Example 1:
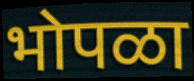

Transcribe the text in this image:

भोपळा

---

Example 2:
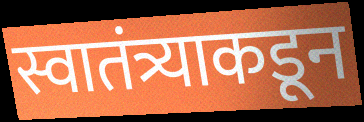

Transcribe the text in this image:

स्वातंत्र्याकडून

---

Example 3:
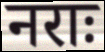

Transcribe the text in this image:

नराः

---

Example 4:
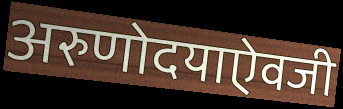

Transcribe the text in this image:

अरुणोदयाऐवजी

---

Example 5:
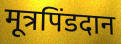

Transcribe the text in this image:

मूत्रपिंडदान